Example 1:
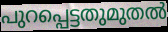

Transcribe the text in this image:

പുറപ്പെട്ടതുമുതൽ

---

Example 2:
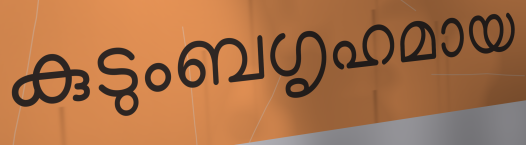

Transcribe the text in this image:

കുടുംബഗൃഹമായ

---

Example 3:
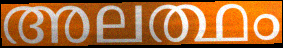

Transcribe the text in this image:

അലത്ഥം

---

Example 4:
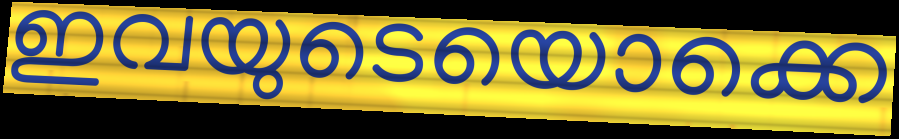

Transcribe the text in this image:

ഇവയുടെയൊക്കെ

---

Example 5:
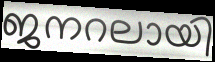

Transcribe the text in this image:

ജനറലായി